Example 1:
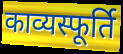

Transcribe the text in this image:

काव्यस्फूर्ति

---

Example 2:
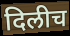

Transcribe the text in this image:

दिलीच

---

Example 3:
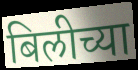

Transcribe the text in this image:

बिलीच्या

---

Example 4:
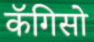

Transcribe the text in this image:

कॅगिसो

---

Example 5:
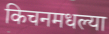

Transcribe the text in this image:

किचनमधल्या